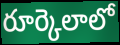
రూర్కెలాలో